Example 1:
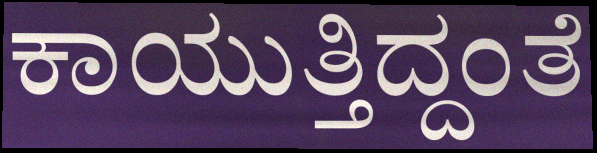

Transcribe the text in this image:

ಕಾಯುತ್ತಿದ್ದಂತೆ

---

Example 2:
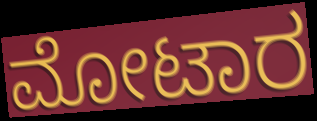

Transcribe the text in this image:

ಮೋಟಾರ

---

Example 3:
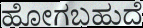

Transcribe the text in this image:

ಹೋಗಬಹುದೆ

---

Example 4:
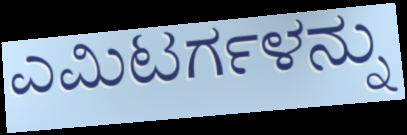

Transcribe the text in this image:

ಎಮಿಟರ್ಗಳನ್ನು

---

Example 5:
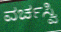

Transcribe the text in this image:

ವರ್ಚಸ್ವಿ